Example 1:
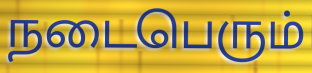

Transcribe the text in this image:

நடைபெரும்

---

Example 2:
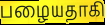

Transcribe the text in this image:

பழையதாகி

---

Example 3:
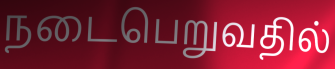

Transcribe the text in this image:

நடைபெறுவதில்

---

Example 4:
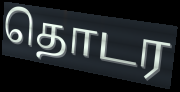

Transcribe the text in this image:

தொடர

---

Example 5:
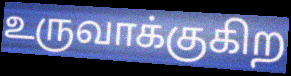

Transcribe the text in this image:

உருவாக்குகிற